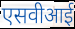
एसवीआई